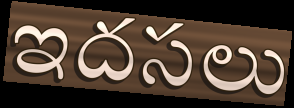
ఇదసలు